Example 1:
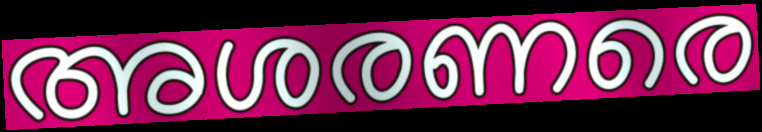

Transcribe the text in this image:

അശരണരെ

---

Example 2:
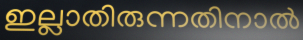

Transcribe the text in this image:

ഇല്ലാതിരുന്നതിനാൽ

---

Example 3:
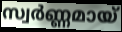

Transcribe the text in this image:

സ്വർണ്ണമായ്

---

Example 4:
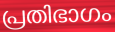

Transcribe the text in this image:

പ്രതിഭാഗം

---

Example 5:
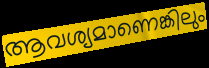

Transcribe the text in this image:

ആവശ്യമാണെങ്കിലും